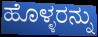
ಹೊಳ್ಳರನ್ನು